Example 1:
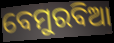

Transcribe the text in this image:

ବେମୁରବିଆ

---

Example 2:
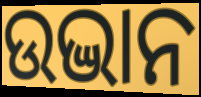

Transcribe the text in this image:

ଉଦ୍ଭାନ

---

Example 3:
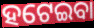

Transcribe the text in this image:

ହଟେଇବା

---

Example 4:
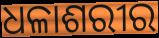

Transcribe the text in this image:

ଧଳାଶରୀର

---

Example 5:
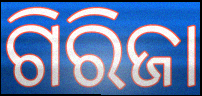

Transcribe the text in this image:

ଗିରିଜା